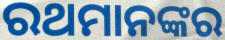
ରଥମାନଙ୍କର